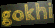
gokhi